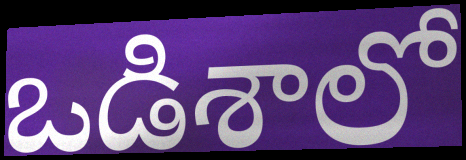
ఒడిశాలో